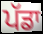
ਪੱਡਾ